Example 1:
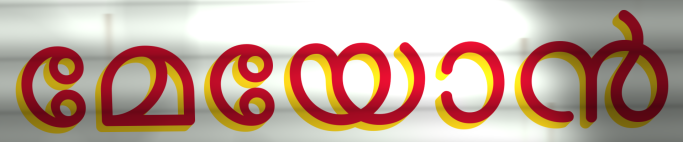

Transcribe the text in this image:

മേയോൻ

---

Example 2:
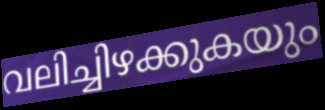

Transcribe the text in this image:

വലിച്ചിഴക്കുകയും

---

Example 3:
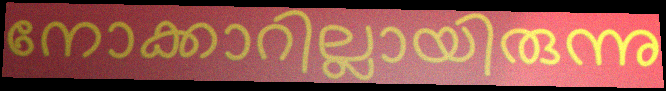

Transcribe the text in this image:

നോക്കാറില്ലായിരുന്നു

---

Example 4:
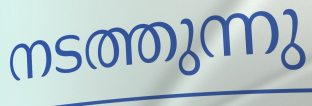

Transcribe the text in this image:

നടത്തുന്നു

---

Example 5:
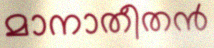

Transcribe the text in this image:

മാനാതീതൻ